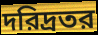
দরিদ্রতর